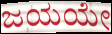
ಜಯಯೇ